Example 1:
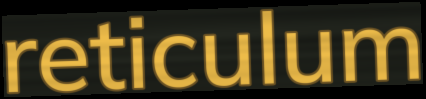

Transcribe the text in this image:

reticulum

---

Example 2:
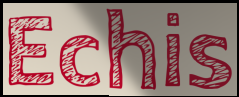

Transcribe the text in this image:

Echis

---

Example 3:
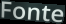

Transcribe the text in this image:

Fonte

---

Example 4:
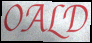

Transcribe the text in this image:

OALD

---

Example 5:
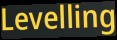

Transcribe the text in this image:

Levelling